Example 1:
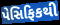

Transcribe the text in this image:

પેસિફિકથી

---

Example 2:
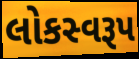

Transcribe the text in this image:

લોકસ્વરૂપ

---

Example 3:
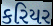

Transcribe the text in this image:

કરિયર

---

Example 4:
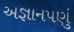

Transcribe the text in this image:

અજ્ઞાનપણું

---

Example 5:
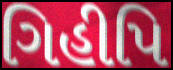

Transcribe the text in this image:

ગિહીપિ